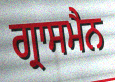
ਗ੍ਰਾਸਮੈਨ